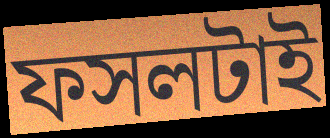
ফসলটাই